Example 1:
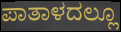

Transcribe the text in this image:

ಪಾತಾಳದಲ್ಲೂ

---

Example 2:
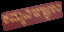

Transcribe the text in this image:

ಕಮ್ಮವಿಞ್ಞಾಣಂ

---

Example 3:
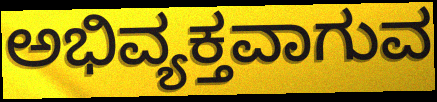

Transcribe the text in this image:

ಅಭಿವ್ಯಕ್ತವಾಗುವ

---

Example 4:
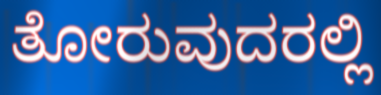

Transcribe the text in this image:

ತೋರುವುದರಲ್ಲಿ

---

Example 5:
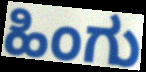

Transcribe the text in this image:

ಹಿಂಗು